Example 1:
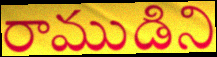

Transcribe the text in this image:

రాముడిని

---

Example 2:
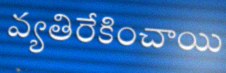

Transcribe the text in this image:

వ్యతిరేకించాయి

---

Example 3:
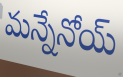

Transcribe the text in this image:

మన్నేనోయ్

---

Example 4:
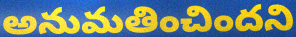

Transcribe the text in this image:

అనుమతించిందని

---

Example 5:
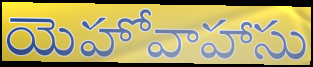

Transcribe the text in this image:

యెహోవాహాసు